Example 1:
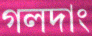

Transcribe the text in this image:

গলদাং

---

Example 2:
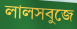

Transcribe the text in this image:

লালসবুজে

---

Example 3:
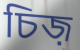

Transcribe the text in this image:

চিজ়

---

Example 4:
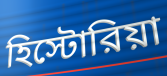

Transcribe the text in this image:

হিস্টোরিয়া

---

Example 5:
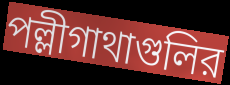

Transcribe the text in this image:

পল্লীগাথাগুলির